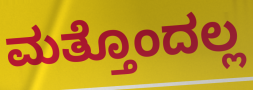
ಮತ್ತೊಂದಲ್ಲ